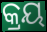
କ୍ରୟ